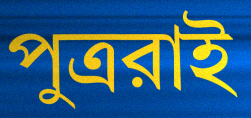
পুত্ররাই